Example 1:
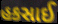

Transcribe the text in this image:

હકસાઈ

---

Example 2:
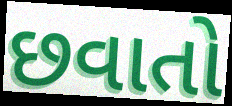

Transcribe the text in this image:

છવાતો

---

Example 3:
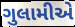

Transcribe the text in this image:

ગુલામીએ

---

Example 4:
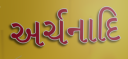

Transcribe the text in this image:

અર્ચનાદિ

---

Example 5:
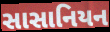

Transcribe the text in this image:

સાસાનિયન